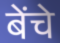
बेंचे